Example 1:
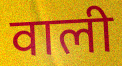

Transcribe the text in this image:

वाली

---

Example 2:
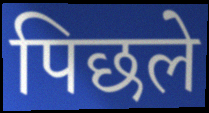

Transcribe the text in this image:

पिछले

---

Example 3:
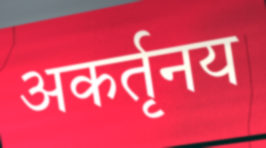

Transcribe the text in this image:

अकर्तृनय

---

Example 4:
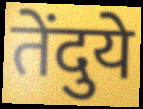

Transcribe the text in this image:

तेंदुये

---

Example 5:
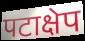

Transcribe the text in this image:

पटाक्षेप